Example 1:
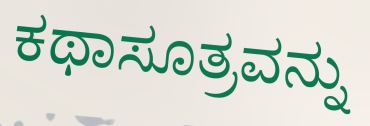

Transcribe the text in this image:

ಕಥಾಸೂತ್ರವನ್ನು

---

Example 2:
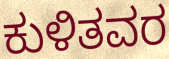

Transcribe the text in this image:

ಕುಳಿತವರ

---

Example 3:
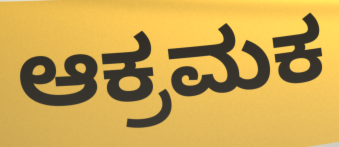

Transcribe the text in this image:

ಆಕ್ರಮಕ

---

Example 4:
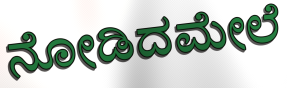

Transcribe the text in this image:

ನೋಡಿದಮೇಲೆ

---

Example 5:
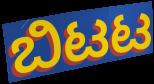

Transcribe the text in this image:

ಬಿಟಟ